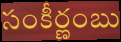
సంకీర్ణంబు